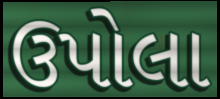
ઉપોલા